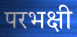
परभक्षी